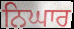
ਨਿਘਾਰ